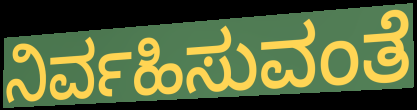
ನಿರ್ವಹಿಸುವಂತೆ